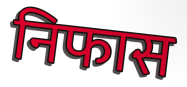
निफास